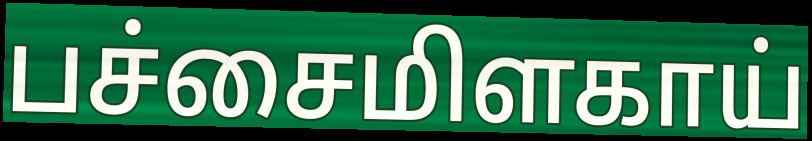
பச்சைமிளகாய்